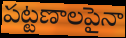
పట్టణాలపైనా